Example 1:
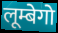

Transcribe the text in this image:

लूम्बेगो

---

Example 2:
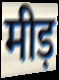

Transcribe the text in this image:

मीड़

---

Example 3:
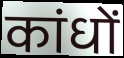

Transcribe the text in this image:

कांधों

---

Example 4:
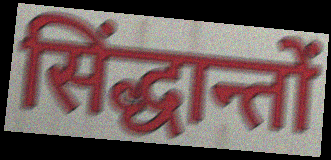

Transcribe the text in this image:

सिंद्धान्तों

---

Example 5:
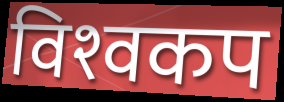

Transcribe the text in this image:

विश्वकप